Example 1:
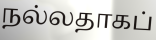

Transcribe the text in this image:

நல்லதாகப்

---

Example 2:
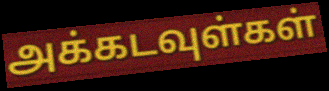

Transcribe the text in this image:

அக்கடவுள்கள்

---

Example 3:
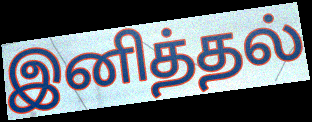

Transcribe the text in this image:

இனித்தல்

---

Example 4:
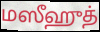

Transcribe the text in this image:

மஸீஹுத்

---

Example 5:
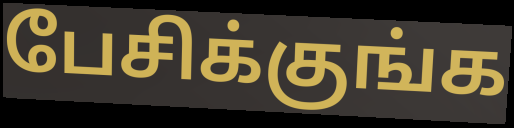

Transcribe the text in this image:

பேசிக்குங்க